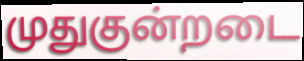
முதுகுன்றடை